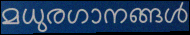
മധുരഗാനങ്ങൾ